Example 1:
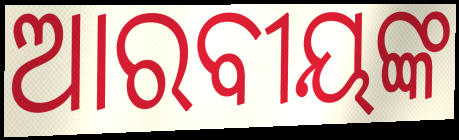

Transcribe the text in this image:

ଆରବୀୟଙ୍କ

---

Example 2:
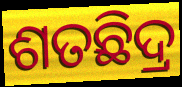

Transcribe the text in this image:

ଶତଛିଦ୍ର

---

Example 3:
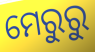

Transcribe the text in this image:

ମେରୁରୁ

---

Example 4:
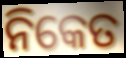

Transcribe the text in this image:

ନିକେତ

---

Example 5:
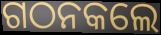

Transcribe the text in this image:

ଗଠନକଲେ